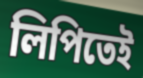
লিপিতেই